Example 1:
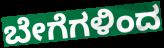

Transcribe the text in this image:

ಬೇಗೆಗಳಿಂದ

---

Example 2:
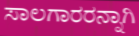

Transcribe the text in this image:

ಸಾಲಗಾರರನ್ನಾಗಿ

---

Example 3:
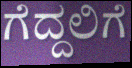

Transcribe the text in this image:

ಗೆದ್ದಲಿಗೆ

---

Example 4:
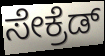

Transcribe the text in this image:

ಸೇಕ್ರೆಡ್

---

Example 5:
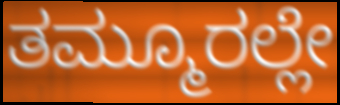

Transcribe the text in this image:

ತಮ್ಮೂರಲ್ಲೇ